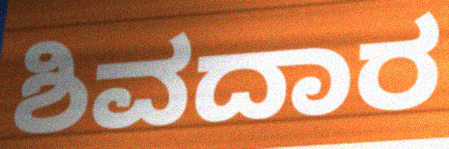
ಶಿವದಾರ